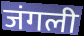
जंगली